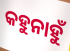
କହୁନାହୁଁ